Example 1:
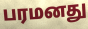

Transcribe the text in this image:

பரமனது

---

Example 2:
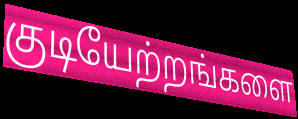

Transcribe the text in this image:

குடியேற்றங்களை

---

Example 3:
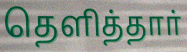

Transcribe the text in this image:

தெளித்தார்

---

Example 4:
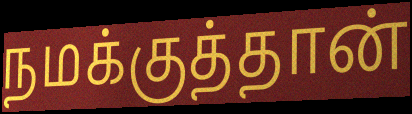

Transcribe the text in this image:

நமக்குத்தான்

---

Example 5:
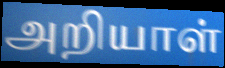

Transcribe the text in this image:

அறியாள்